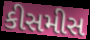
કીસમીસ